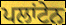
ਪਲਾਂਟੇਨ